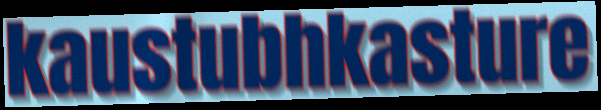
kaustubhkasture